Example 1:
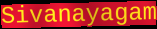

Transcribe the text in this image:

Sivanayagam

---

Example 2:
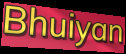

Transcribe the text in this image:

Bhuiyan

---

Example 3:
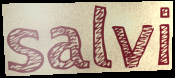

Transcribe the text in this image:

salvi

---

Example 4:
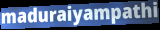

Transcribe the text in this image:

maduraiyampathi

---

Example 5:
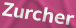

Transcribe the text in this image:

Zurcher